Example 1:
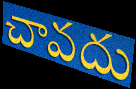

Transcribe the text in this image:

చావదు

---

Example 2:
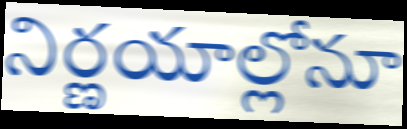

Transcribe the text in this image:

నిర్ణయాల్లోనూ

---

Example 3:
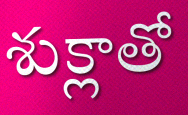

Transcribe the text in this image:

శుక్లాతో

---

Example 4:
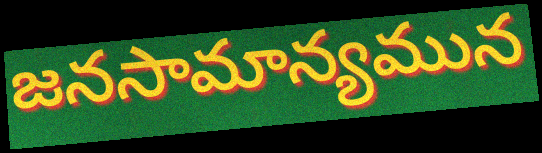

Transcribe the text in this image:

జనసామాన్యమున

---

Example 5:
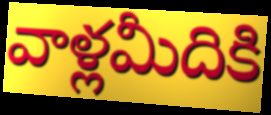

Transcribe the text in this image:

వాళ్లమీదికి